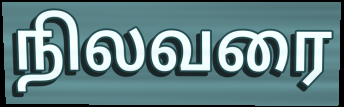
நிலவரை